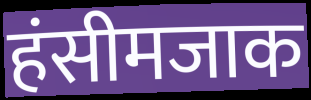
हंसीमजाक